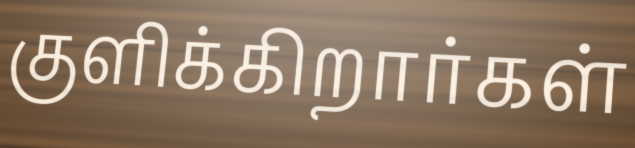
குளிக்கிறார்கள்